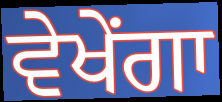
ਵੇਖੇਂਗਾ